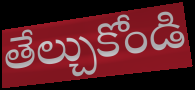
తేల్చుకోండి